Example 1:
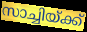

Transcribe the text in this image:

സാച്ചിയ്ക്ക്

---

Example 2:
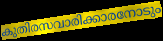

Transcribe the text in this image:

കുതിരസവാരിക്കാരനോടും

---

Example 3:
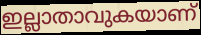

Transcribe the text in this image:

ഇല്ലാതാവുകയാണ്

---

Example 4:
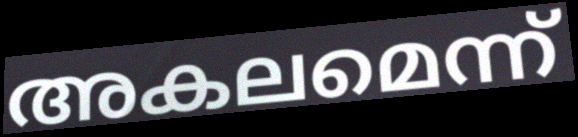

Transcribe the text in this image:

അകലമെന്ന്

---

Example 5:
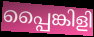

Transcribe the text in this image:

പ്പൈങ്കിളി